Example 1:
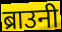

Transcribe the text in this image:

ब्राउनी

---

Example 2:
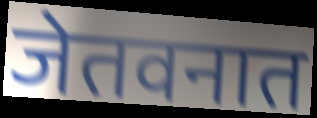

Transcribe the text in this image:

जेतवनात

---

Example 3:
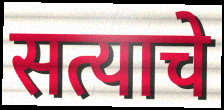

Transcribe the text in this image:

सत्याचे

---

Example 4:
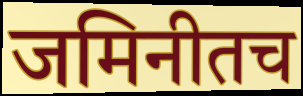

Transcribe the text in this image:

जमिनीतच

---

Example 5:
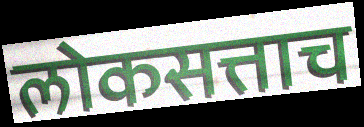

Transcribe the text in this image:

लोकसत्ताच